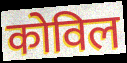
कोविल